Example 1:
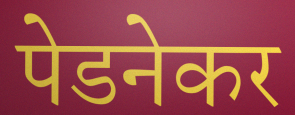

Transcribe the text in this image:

पेडनेकर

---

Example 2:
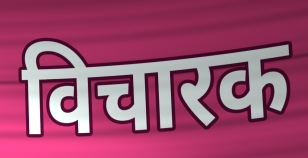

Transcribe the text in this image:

विचारक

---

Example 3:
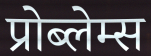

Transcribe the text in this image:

प्रोब्लेम्स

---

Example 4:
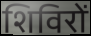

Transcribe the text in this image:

शिविरों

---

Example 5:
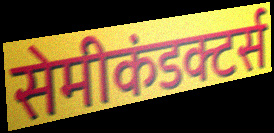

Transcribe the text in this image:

सेमीकंडक्टर्स